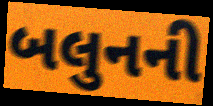
બલુનની